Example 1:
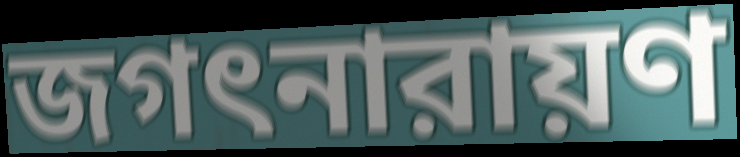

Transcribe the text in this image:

জগৎনারায়ণ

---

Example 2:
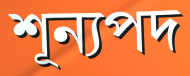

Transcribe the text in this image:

শূন্যপদ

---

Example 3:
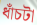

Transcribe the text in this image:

ধাঁচটা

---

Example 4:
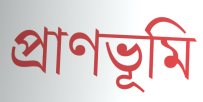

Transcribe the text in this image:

প্রাণভূমি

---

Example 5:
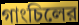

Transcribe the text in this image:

গাংচিলের